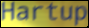
Hartup